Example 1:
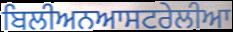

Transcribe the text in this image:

ਬਿਲੀਅਨਆਸਟਰੇਲੀਆ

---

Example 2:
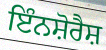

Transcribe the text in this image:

ਇੰਨਸ਼ੋਰੈਸ਼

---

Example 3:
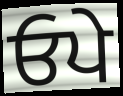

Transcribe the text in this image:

ਓਪੇ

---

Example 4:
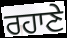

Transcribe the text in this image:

ਰਹਾਣੇ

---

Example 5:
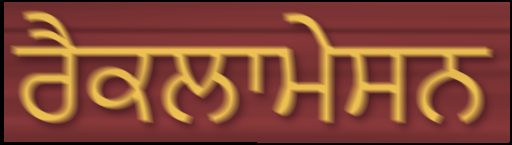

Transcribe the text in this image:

ਰੈਕਲਾਮੇਸਨ